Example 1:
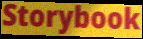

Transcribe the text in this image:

Storybook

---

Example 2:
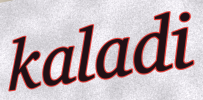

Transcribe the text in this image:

kaladi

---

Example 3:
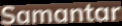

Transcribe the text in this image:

Samantar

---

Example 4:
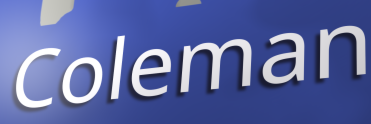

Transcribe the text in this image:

Coleman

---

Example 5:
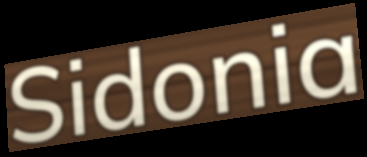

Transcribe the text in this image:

Sidonia